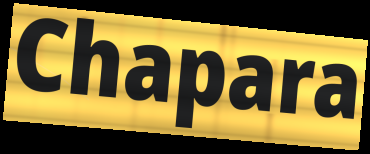
Chapara